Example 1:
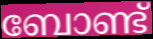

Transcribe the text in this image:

ബോണ്ട്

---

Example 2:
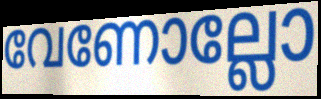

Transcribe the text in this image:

വേണോല്ലോ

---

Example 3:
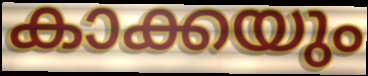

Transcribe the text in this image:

കാക്കയും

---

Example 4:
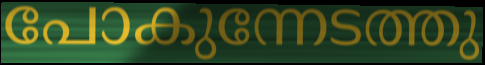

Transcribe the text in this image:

പോകുന്നേടത്തു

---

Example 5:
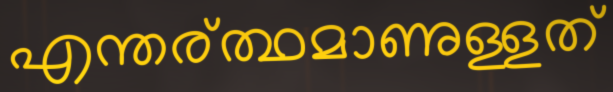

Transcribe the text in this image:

എന്തര്ത്ഥമാണുള്ളത്